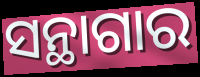
ସନ୍ଥାଗାର